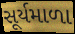
સૂર્યમાળા